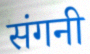
संगनी